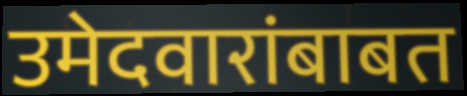
उमेदवारांबाबत